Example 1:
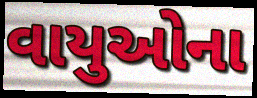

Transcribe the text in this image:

વાયુઓના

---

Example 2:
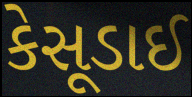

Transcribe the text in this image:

કેસૂડાઈ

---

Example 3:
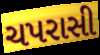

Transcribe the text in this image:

ચપરાસી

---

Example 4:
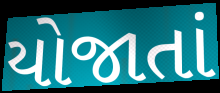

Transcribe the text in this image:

યોજાતાં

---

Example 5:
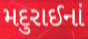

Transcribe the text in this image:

મદુરાઈનાં